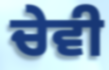
ਚੇਵੀ